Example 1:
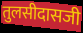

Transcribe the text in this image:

तुलसीदासजी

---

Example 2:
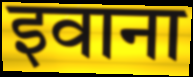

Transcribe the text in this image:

इवाना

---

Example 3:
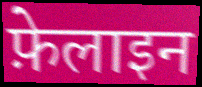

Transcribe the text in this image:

फ़ेलाइन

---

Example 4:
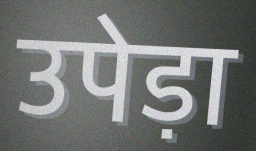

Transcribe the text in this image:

उपेड़ा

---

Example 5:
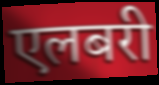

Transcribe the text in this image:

एलबरी